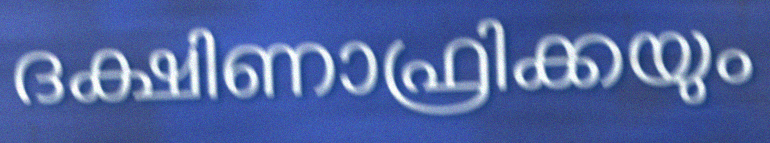
ദക്ഷിണാഫ്രിക്കയും